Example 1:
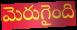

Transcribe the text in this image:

మెరుగైంది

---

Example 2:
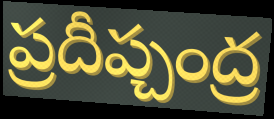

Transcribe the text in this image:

ప్రదీప్చంద్ర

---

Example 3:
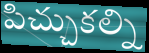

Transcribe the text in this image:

పిచ్చుకల్ని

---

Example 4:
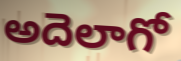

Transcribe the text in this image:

అదెలాగో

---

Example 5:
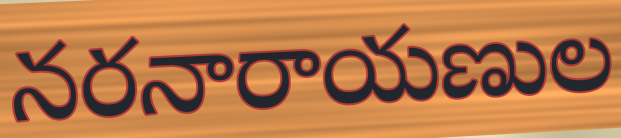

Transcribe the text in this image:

నరనారాయణుల